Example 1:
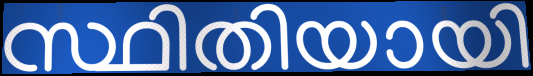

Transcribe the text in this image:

സ്ഥിതിയായി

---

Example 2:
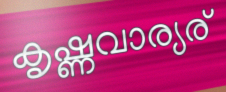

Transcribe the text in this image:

കൃഷ്ണവാര്യര്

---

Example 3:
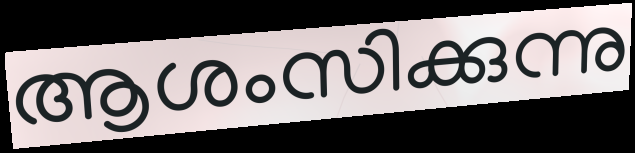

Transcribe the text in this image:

ആശംസിക്കുന്നു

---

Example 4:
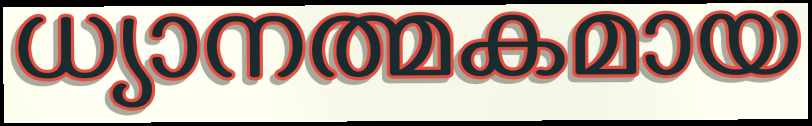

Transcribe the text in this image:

ധ്യാനത്മകമായ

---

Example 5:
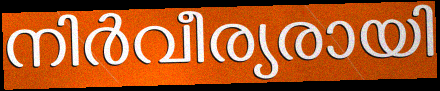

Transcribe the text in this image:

നിർവീര്യരായി